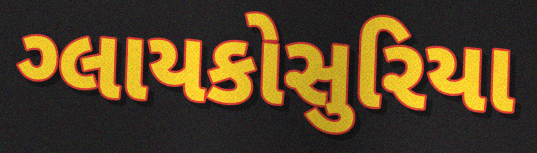
ગ્લાયકોસુરિયા